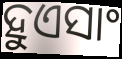
ହୁଏସାଂ